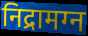
निद्रामग्न